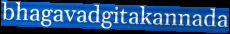
bhagavadgitakannada